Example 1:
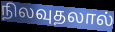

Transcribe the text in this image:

நிலவுதலால்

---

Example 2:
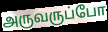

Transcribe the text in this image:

அருவருப்போ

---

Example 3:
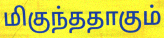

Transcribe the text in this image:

மிகுந்ததாகும்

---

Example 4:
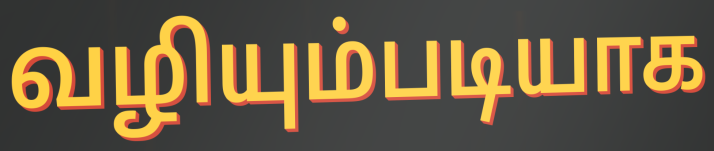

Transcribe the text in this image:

வழியும்படியாக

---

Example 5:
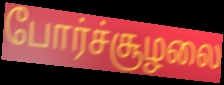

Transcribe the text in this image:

போர்ச்சூழலை